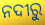
ନଦୀରୁ